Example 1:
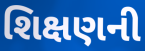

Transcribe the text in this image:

શિક્ષણની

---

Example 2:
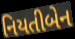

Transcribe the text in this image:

નિયતીબેન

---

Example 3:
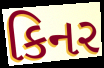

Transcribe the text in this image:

કિનર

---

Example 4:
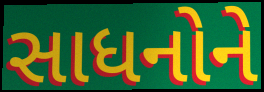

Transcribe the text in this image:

સાધનોને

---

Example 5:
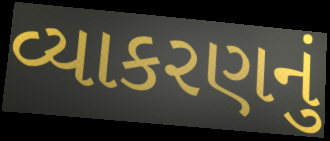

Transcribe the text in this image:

વ્યાકરણનું